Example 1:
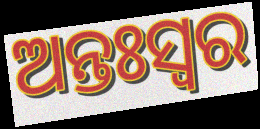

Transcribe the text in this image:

ଅନ୍ତଃସ୍ଵର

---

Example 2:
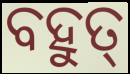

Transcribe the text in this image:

ବହୁତ୍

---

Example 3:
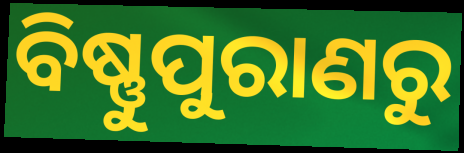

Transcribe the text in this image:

ବିଷ୍ଣୁପୁରାଣରୁ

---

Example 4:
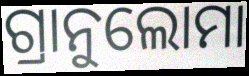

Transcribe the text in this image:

ଗ୍ରାନୁଲୋମା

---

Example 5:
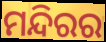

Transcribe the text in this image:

ମନ୍ଦିରର